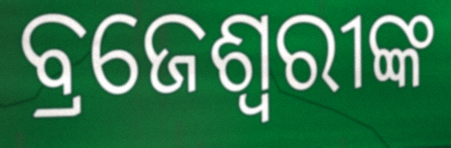
ବ୍ରଜେଶ୍ୱରୀଙ୍କ